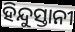
ହିନ୍ଦୁସ୍ତାନୀ